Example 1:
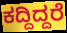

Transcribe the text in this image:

ಕದ್ದಿದ್ದರೆ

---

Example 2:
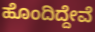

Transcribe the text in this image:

ಹೊಂದಿದ್ದೇವೆ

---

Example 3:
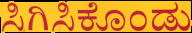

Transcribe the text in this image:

ಸಿಗಿಸಿಕೊಂಡು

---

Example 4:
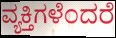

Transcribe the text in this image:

ವ್ಯಕ್ತಿಗಳೆಂದರೆ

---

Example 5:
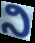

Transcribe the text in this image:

ನಿ